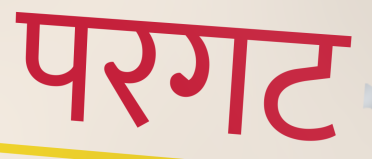
परगट